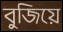
বুজিয়ে